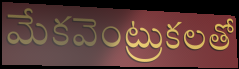
మేకవెంట్రుకలతో